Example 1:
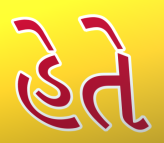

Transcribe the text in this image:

હેતે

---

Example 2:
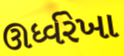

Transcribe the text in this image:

ઊર્ધ્વરેખા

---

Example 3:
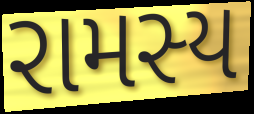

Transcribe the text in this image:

રામસ્ય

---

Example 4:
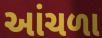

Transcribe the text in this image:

આંચળા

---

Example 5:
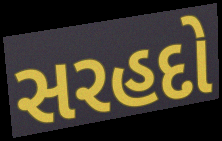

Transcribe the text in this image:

સરહદો